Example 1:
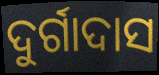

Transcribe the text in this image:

ଦୁର୍ଗାଦାସ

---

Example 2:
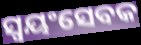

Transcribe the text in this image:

ସ୍ୱୟଂସେବକ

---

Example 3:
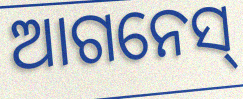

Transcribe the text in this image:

ଆଗନେସ୍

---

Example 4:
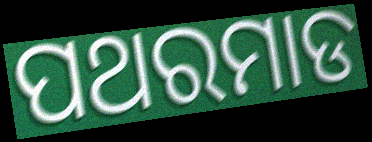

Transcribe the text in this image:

ପଥରମାଡ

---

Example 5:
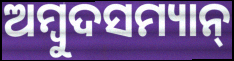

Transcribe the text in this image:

ଅମ୍ୱୁଦସମ୍ୟାନ୍